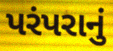
પરંપરાનું